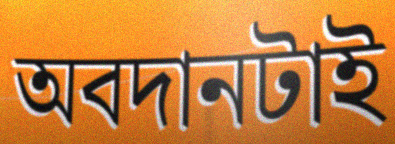
অবদানটাই